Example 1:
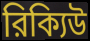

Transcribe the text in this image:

রিক্যিউ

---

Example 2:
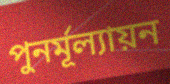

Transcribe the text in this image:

পুনর্মূল্যায়ন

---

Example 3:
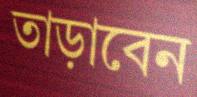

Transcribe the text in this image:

তাড়াবেন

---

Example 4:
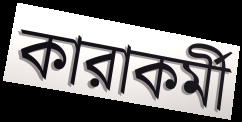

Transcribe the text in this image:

কারাকর্মী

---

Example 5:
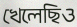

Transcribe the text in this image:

খেলেছিও